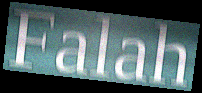
Falah